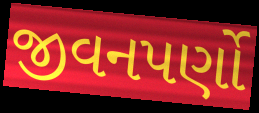
જીવનપર્ણો